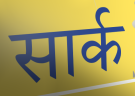
सार्क